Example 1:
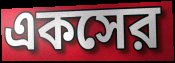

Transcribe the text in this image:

একসের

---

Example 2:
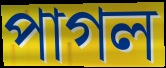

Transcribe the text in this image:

পাগল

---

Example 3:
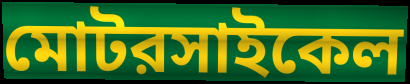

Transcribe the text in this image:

মোটরসাইকেল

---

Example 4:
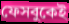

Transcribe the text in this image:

ফেসবুকেই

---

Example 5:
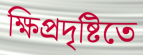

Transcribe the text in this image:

ক্ষিপ্রদৃষ্টিতে